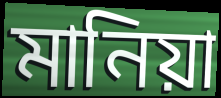
মানিয়া